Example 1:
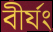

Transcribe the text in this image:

বীর্যং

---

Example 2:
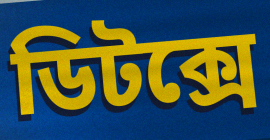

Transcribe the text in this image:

ডিটক্সে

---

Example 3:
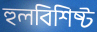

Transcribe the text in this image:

হুলবিশিষ্ট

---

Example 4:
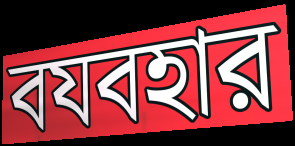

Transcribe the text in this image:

বযবহার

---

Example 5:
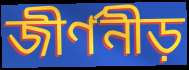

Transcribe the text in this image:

জীর্ণনীড়